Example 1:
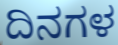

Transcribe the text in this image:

ದಿನಗಳ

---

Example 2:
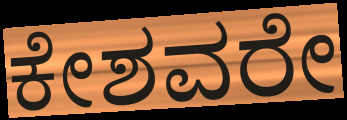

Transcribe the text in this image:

ಕೇಶವರೇ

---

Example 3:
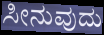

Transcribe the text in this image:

ಸೀನುವುದು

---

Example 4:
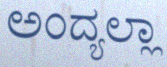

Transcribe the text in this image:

ಅಂದ್ಯಲ್ಲಾ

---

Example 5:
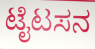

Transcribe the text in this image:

ಟೈಟಸನ